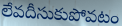
లేవదీసుకుపోవటం